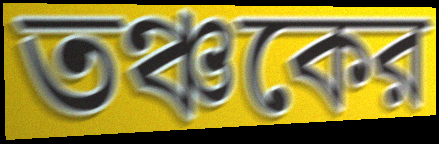
তঞ্চকের